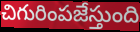
చిగురింపజేస్తుంది